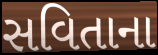
સવિતાના